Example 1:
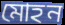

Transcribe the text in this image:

মোহন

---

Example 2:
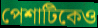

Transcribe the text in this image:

পেশাটিকেও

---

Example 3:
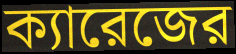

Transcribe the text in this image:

ক্যারেজের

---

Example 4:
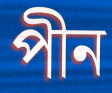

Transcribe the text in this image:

পীন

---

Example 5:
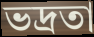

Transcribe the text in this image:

ভদ্রতা